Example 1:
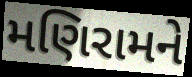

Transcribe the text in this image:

મણિરામને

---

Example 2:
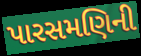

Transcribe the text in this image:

પારસમણિની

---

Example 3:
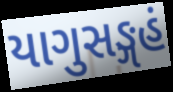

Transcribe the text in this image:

યાગુસઙ્ગહં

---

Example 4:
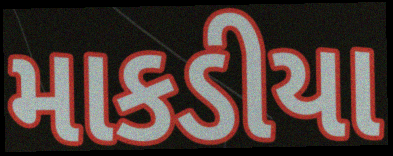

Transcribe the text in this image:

માકડીયા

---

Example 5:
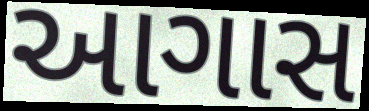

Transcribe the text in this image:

આગાસ